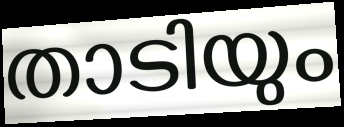
താടിയും